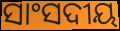
ସାଂସଦୀୟ